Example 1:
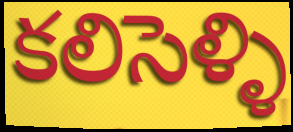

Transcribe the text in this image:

కలిసెళ్ళి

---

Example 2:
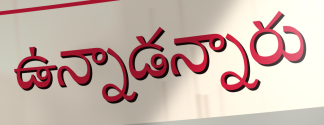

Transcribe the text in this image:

ఉన్నాడన్నారు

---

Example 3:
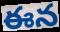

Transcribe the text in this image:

ఈన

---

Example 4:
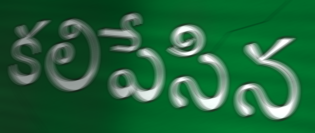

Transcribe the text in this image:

కలిపేసిన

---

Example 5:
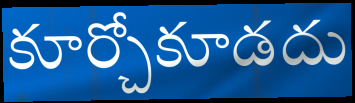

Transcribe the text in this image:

కూర్చోకూడదు